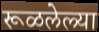
रूळलेल्या